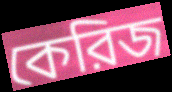
কেরিজ